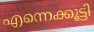
എന്നെക്കൂട്ടി